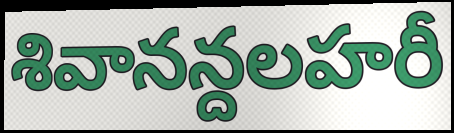
శివానన్దలహరీ